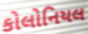
કોલોનિયલ